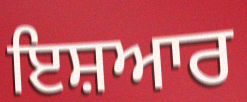
ਇਸ਼ਆਰ